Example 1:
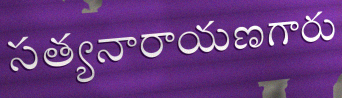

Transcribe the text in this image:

సత్యనారాయణగారు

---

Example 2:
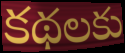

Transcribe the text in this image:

కథలకు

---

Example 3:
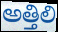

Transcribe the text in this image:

అత్తిలి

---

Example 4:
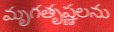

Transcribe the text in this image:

మృగతృష్ణలను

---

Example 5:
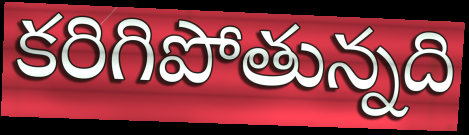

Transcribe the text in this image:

కరిగిపోతున్నది